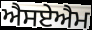
ਐਸਏਐਮ